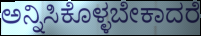
ಅನ್ನಿಸಿಕೊಳ್ಳಬೇಕಾದರೆ